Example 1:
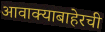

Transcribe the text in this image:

आवाक्याबाहेरची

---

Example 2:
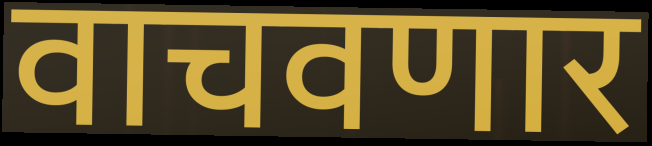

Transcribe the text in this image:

वाचवणार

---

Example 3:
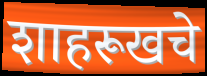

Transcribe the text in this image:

शाहरूखचे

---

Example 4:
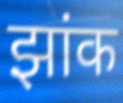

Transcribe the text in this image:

झांक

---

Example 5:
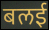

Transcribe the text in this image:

बलई